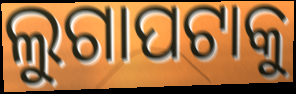
ଲୁଗାପଟାକୁ